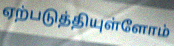
ஏற்படுத்தியுள்ளோம்